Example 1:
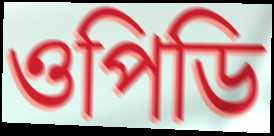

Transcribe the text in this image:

ওপিডি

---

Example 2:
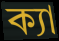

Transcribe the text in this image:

ক্যা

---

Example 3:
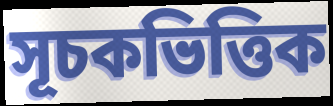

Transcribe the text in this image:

সূচকভিত্তিক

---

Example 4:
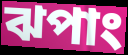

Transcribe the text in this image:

ঝপাং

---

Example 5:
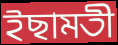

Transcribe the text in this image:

ইছামতী